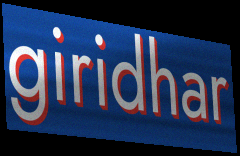
giridhar